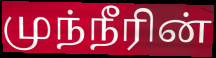
முந்நீரின்